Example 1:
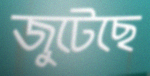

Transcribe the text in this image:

জুটেছে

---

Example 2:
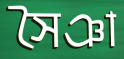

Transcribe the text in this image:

সৈঞা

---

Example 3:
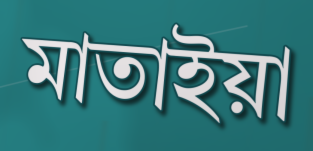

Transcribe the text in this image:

মাতাইয়া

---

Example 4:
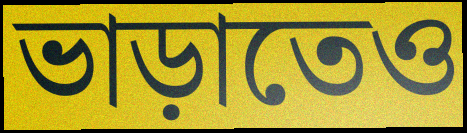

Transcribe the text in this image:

ভাড়াতেও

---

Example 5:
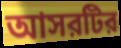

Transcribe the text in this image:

আসরটির